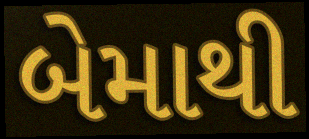
બેમાથી